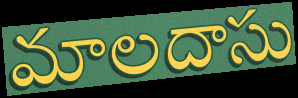
మాలదాసు